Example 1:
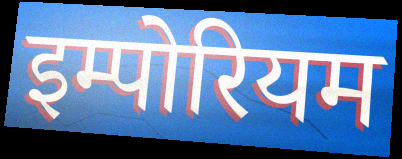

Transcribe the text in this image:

इम्पोरियम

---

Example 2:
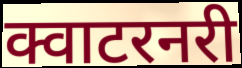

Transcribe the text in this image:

क्वाटरनरी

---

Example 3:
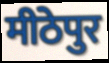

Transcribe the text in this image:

मीठेपुर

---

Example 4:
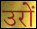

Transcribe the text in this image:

उरों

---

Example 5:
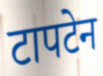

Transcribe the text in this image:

टापटेन